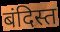
बंदिस्त